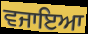
ਵਜਾਇਆ